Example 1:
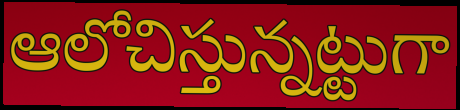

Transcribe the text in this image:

ఆలోచిస్తున్నట్టుగా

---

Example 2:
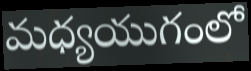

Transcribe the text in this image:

మధ్యయుగంలో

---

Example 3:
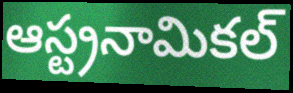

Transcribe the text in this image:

ఆస్ట్రనామికల్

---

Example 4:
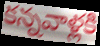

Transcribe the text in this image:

కన్నవాళ్లకి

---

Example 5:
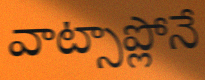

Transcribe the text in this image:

వాట్సాప్లోనే